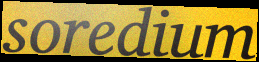
soredium